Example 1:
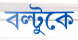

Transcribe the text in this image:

বল্টুকে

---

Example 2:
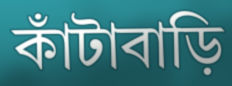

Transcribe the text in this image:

কাঁটাবাড়ি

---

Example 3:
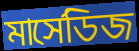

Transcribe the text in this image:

মার্সেডিজ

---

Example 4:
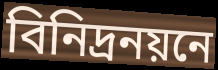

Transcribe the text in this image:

বিনিদ্রনয়নে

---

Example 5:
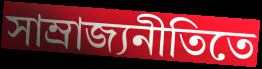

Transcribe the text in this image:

সাম্রাজ্যনীতিতে